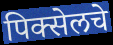
पिक्सेलचे